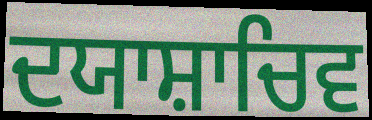
ਦਯਾਸ਼ਾਚਿਵ